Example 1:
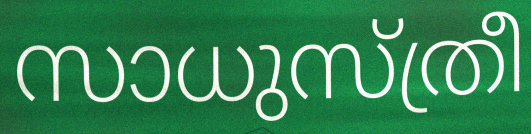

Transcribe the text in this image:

സാധുസ്ത്രീ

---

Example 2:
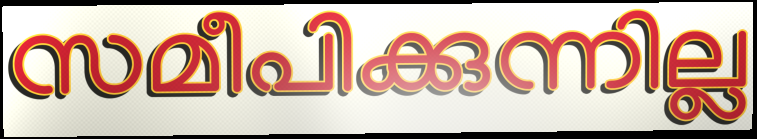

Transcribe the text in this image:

സമീപിക്കുന്നില്ല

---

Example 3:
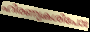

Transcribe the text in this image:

ഹിരണ്യകശിപോഃ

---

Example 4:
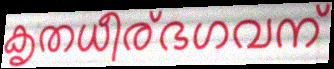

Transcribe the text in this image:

കൃതധീര്ഭഗവന്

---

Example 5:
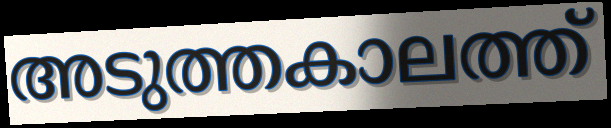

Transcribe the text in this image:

അടുത്തകാലത്ത്